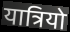
यात्रियो